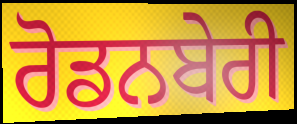
ਰੋਡਨਬੇਰੀ